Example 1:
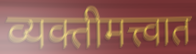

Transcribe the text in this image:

व्यक्तीमत्त्वात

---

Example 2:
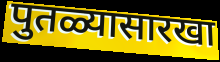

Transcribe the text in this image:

पुतळ्यासारखा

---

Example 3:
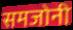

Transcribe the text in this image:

समजोनी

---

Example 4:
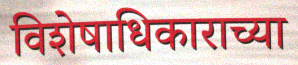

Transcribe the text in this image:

विशेषाधिकाराच्या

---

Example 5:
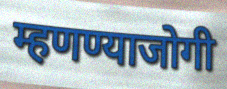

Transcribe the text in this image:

म्हणण्याजोगी